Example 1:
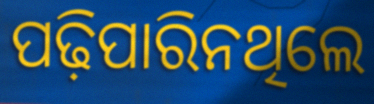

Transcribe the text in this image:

ପଢ଼ିପାରିନଥିଲେ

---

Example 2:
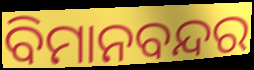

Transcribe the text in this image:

ବିମାନବନ୍ଦର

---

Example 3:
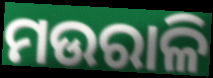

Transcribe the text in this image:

ମଉରାଳି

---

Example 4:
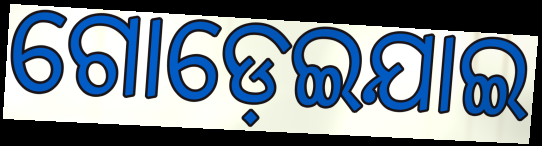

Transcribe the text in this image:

ଗୋଡ଼େଇଯାଇ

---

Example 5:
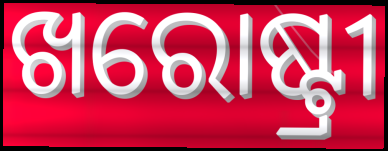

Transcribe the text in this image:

ଖରୋଷ୍ଟ୍ରୀ